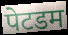
पेटडम